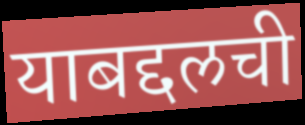
याबद्दलची